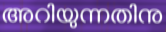
അറിയുന്നതിനു